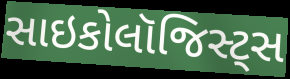
સાઇકોલૉજિસ્ટ્સ